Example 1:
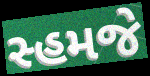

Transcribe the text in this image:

સ્હમજે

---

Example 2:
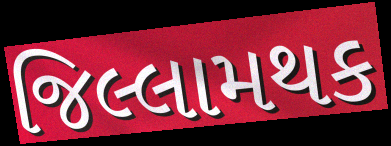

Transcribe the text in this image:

જિલ્લામથક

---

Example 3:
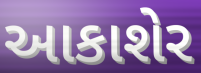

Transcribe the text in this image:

આકાશેર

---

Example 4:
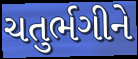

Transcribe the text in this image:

ચતુર્ભગીને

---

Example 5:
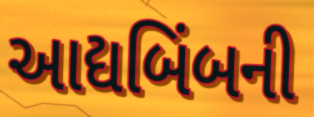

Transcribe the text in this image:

આદ્યબિંબની